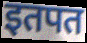
इतपत